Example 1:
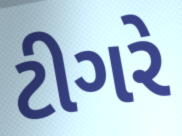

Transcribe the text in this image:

ટીગરે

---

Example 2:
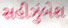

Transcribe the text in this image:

સહીઝુંબેશ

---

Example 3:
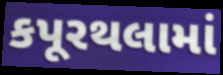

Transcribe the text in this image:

કપૂરથલામાં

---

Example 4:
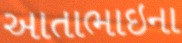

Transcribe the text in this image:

આતાભાઇના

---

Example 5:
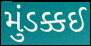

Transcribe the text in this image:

મુંડક્કઈ